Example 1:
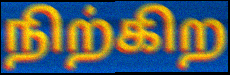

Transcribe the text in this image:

நிற்கிற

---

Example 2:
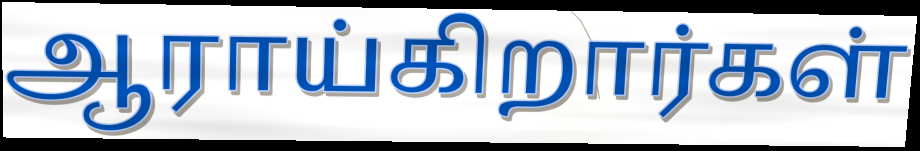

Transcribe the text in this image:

ஆராய்கிறார்கள்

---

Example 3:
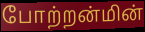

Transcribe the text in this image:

போற்றன்மின்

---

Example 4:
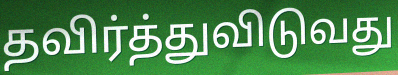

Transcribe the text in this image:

தவிர்த்துவிடுவது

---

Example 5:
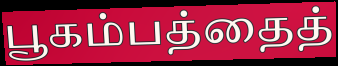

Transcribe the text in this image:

பூகம்பத்தைத்